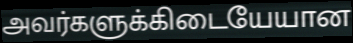
அவர்களுக்கிடையேயான